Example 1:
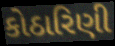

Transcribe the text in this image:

કોઠારિણી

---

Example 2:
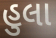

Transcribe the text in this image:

હુલા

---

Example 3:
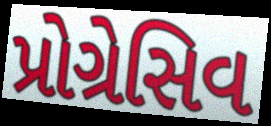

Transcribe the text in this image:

પ્રોગ્રેસિવ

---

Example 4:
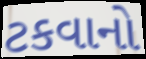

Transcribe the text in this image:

ટકવાનો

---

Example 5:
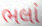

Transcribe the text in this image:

ભલાં